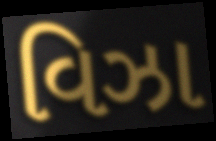
વિઝા